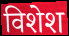
विशेश